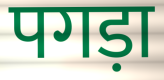
पगड़ा